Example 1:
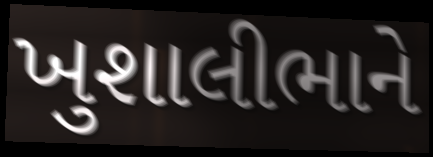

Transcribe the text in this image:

ખુશાલીભાને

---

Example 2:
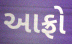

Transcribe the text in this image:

આફ્રો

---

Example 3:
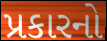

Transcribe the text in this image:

પ્રકારનો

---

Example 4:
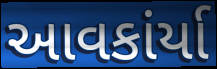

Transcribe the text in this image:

આવકાંર્યા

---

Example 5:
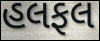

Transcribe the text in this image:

હલફલ